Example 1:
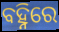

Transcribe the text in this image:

ବହ୍ନିରେ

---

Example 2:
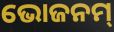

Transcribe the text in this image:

ଭୋଜନମ୍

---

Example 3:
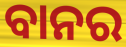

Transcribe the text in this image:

ବାନର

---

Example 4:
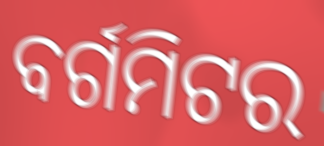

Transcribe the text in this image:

ବର୍ଗମିଟର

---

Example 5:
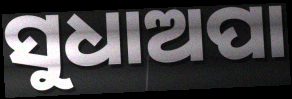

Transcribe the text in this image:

ସୁଧାଅପା